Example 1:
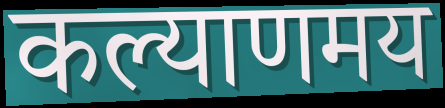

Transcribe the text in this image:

कल्याणमय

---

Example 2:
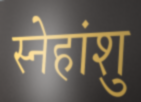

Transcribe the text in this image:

स्नेहांशु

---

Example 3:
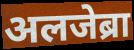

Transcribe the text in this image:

अलजेब्रा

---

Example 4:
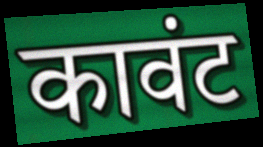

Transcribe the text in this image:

कावंट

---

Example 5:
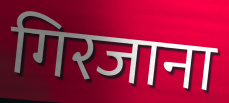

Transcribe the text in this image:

गिरजाना